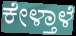
ಕೇಳ್ತಾಳೆ